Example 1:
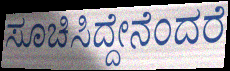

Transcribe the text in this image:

ಸೂಚಿಸಿದ್ದೇನೆಂದರೆ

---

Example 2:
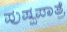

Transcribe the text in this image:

ಪುಷ್ಪಪಾತ್ರೆ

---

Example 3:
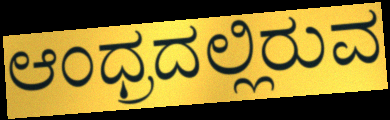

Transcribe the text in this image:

ಆಂಧ್ರದಲ್ಲಿರುವ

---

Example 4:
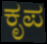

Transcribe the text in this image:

ಕೃಪ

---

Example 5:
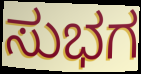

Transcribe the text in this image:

ಸುಭಗ